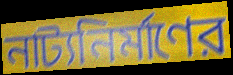
নাট্যনির্মাণের